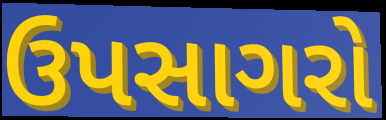
ઉપસાગરો